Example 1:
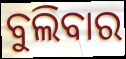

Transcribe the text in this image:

ବୁଲିବାର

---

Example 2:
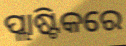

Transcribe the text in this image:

ପ୍ଲାଷ୍ଟିକରେ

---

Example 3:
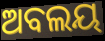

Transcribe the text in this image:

ଅବଲୟ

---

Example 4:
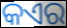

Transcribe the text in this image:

କଏର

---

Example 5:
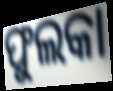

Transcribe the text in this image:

ଫୁଲକା